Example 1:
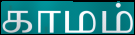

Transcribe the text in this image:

காமம்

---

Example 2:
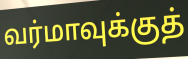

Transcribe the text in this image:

வர்மாவுக்குத்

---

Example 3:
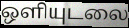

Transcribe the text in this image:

ஒளியுடலை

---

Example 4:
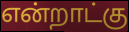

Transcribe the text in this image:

என்றாட்கு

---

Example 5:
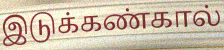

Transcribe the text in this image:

இடுக்கண்கால்